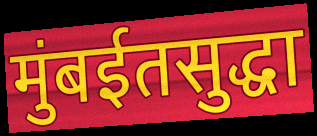
मुंबईतसुद्धा